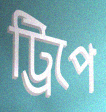
ট্রিপে